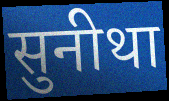
सुनीथा